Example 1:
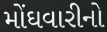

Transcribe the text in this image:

મોંઘવારીનો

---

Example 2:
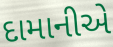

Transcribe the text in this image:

દામાનીએ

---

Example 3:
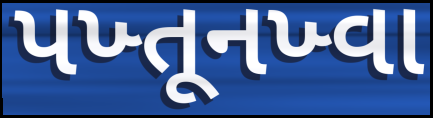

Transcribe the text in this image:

પખ્તૂનખ્વા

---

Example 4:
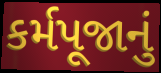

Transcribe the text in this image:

કર્મપૂજાનું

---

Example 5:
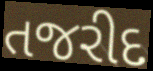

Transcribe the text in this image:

તજરીદ